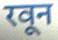
रवून